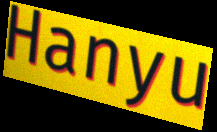
Hanyu